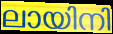
ലായിനി